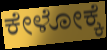
ಕೇಳೋಕ್ಕೆ